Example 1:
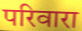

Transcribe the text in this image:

परिवारा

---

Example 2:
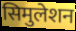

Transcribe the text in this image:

सिमुलेशन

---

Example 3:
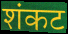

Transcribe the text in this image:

शंकट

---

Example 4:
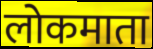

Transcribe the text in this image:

लोकमाता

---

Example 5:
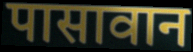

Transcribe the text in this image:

पासावान